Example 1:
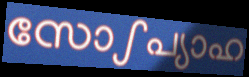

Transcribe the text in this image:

സോഽപ്യാഹ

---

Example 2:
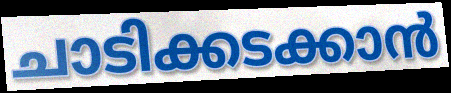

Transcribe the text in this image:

ചാടിക്കടക്കാൻ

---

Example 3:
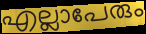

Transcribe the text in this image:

എല്ലാപേരും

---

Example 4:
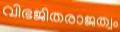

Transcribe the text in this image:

വിഭജിതരാജത്വം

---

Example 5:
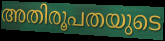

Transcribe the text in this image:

അതിരൂപതയുടെ